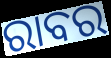
ରାବର